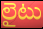
లైటు